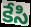
కేసి